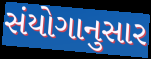
સંયોગાનુસાર